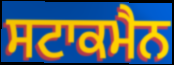
ਸਟਾਕਮੈਨ